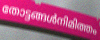
തോട്ടങ്ങൾനിമിത്തം